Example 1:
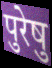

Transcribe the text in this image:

पुरेषु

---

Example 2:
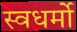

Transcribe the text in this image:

स्वधर्मो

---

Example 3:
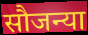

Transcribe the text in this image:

सौजन्या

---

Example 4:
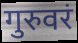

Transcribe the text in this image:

गुरुवरं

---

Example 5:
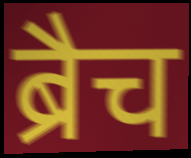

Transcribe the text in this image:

ब्रैच